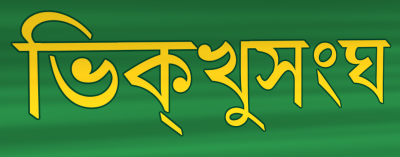
ভিক্খুসংঘ